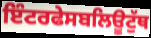
ਇੰਟਰਫੇਸਬਲਿਊਟੁੱਥ